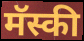
मॅस्की